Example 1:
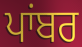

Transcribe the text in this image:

ਪਾਂਬਰ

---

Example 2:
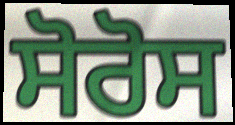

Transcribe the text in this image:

ਸੋਰੋਸ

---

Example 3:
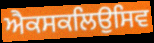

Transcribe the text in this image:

ਐਕਸਕਲਿਉਸਿਵ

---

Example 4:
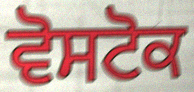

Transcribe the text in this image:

ਵੋਸਟੋਕ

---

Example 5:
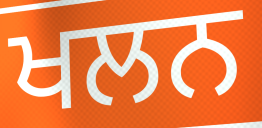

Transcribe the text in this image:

ਖਲਨ